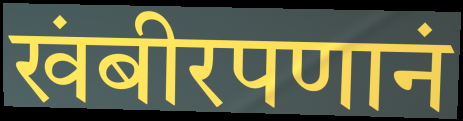
खंबीरपणानं